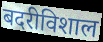
बदरीविशाल